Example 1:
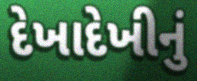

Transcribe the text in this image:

દેખાદેખીનું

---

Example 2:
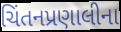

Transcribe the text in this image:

ચિંતનપ્રણાલીના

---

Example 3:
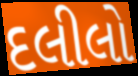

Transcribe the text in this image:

દલીલો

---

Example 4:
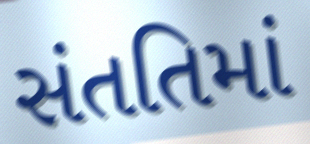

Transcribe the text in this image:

સંતતિમાં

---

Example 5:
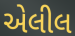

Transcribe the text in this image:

એલીલ